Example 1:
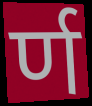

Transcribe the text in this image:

र्ण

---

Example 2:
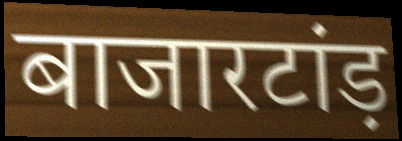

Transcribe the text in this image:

बाजारटांड़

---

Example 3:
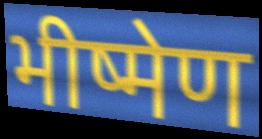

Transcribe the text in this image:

भीष्मेण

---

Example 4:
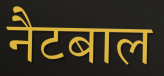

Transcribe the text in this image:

नैटबाल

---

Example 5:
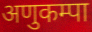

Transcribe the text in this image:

अणुकम्पा